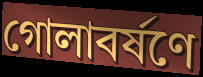
গোলাবর্ষণে